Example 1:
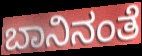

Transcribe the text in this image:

ಬಾನಿನಂತೆ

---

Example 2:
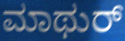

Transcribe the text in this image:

ಮಾಥುರ್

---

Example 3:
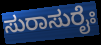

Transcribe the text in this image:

ಸುರಾಸುರೈಃ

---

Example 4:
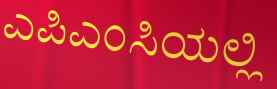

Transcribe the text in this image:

ಎಪಿಎಂಸಿಯಲ್ಲಿ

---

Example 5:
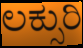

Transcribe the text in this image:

ಲಕ್ಸುರಿ